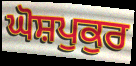
ਘੋਸ਼ਪੁਕੁਰ